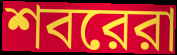
শবরেরা